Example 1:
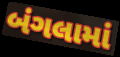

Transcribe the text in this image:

બંગલામાં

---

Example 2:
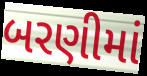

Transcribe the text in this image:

બરણીમાં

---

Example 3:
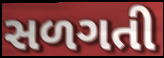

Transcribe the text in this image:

સળગતી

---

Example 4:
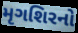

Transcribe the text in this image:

મૃગશિરનો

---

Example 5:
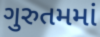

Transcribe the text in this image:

ગુરુતમમાં